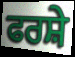
ਫਰਸ਼ੇ